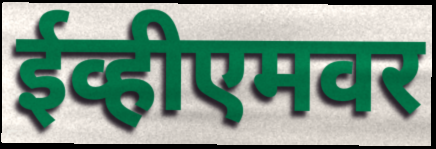
ईव्हीएमवर